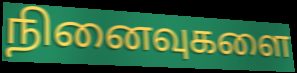
நினைவுகளை